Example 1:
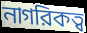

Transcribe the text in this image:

নাগরিকত্ব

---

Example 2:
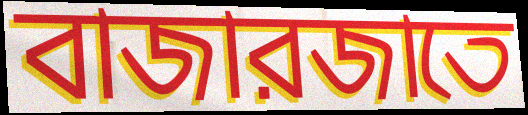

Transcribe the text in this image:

বাজারজাতে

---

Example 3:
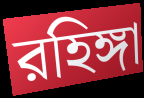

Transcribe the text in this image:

রহিঙ্গা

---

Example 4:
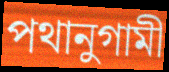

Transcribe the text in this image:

পথানুগামী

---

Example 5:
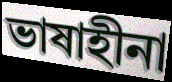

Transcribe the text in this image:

ভাষাহীনা